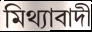
মিথ্যাবাদী